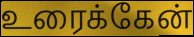
உரைக்கேன்